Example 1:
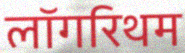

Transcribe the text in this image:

लॉगरिथम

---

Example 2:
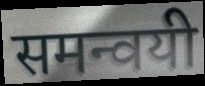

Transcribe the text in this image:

समन्वयी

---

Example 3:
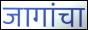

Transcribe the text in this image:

जागांचा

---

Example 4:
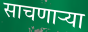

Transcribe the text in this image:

साचणार्‍या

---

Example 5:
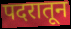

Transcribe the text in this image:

पदरातून